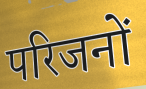
परिजनों